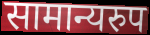
सामान्यरुप